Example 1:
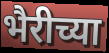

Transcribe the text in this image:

भैरीच्या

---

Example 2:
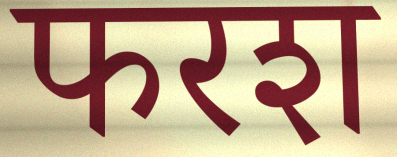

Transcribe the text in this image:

फरश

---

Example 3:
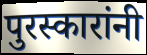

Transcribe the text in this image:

पुरस्कारांनी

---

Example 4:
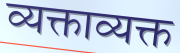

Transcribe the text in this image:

व्यक्ताव्यक्त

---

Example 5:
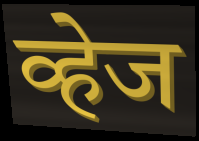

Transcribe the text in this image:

व्हेज